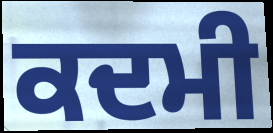
ਕਦਮੀ